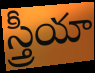
స్త్రీయా